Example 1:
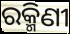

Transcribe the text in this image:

ରକ୍ମିଣୀ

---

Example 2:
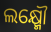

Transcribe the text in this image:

ଲକ୍ଷ୍ମୌ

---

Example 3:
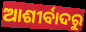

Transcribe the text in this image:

ଆଶୀର୍ବାଦରୁ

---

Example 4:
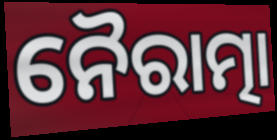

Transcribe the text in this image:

ନୈରାତ୍ମା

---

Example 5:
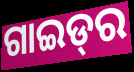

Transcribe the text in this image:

ଗାଇଡ୍‌ର